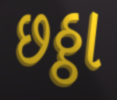
છઠ્ઠા